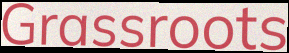
Grassroots